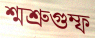
শ্মশ্রুগুম্ফ